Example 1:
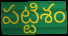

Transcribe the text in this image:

పట్టిశం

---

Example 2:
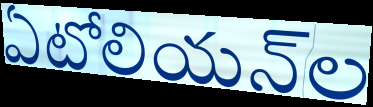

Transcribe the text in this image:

ఏటోలియన్‌ల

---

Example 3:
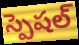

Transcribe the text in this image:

స్పెషల్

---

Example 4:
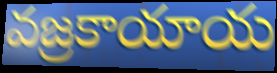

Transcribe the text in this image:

వజ్రకాయాయ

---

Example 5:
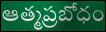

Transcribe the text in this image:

ఆత్మప్రబోధం